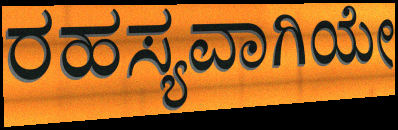
ರಹಸ್ಯವಾಗಿಯೇ